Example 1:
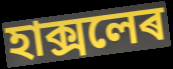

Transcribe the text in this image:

হাক্সলেৰ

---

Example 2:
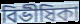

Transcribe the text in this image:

বিভীষিকা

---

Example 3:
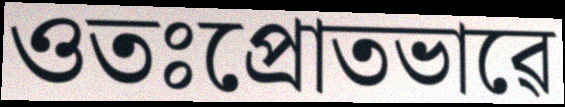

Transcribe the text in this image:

ওতঃপ্ৰোতভাৱে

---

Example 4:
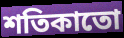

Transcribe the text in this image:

শতিকাতো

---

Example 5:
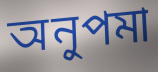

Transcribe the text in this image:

অনুপমা